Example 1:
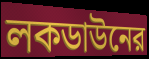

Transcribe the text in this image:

লকডাউনের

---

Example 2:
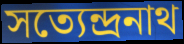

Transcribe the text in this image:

সত্যেন্দ্রনাথ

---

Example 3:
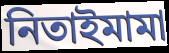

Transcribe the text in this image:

নিতাইমামা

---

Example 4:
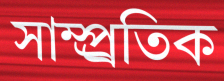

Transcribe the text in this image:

সাম্প্র্রতিক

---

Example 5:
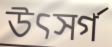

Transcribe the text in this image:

উৎসর্গ